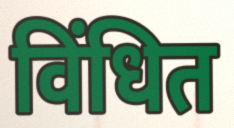
विंधित